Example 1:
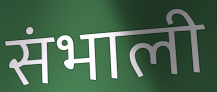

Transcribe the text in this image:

संभाली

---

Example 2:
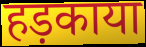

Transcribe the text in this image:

हड़काया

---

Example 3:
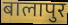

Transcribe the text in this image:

बालापुर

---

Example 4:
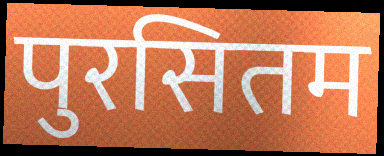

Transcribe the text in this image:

पुरसितम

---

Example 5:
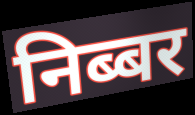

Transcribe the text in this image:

निब्बर